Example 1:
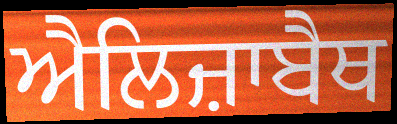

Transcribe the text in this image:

ਐਲਿਜ਼ਾਬੈਥ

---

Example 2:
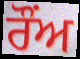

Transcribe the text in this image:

ਰੌਂਅ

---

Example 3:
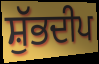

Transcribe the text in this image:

ਸ਼ੁੱਭਦੀਪ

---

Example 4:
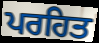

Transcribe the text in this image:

ਪਰਹਿਤ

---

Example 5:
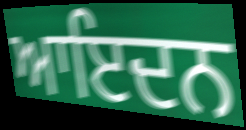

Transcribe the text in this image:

ਆਇਦਨ